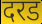
दरड